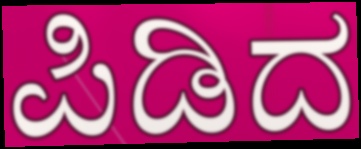
ಪಿಡಿದ